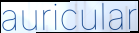
auricular